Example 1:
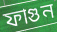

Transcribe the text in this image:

ফাগুন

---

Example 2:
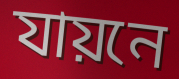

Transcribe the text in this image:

যায়নে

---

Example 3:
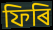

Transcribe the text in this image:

ফিৰি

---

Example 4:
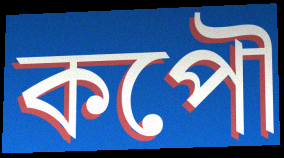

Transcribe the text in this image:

কপৌ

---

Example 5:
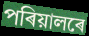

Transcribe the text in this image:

পৰিয়ালৰে